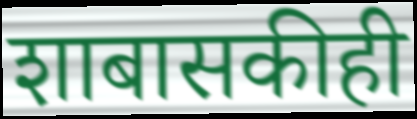
शाबासकीही